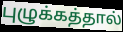
புழுக்கத்தால்